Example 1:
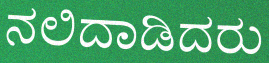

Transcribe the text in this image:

ನಲಿದಾಡಿದರು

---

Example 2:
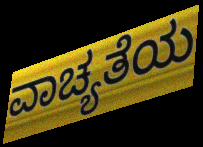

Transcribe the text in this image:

ವಾಚ್ಯತೆಯ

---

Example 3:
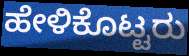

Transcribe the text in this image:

ಹೇಳಿಕೊಟ್ಟರು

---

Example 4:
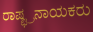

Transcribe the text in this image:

ರಾಷ್ಟ್ರನಾಯಕರು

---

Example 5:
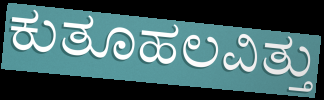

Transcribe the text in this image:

ಕುತೂಹಲವಿತ್ತು